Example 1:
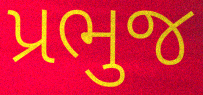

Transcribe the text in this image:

પ્રભુજ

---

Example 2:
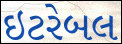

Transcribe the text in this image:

ઇટરેબલ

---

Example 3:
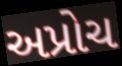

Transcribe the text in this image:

અપ્રોચ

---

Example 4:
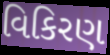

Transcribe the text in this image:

વિકિરણ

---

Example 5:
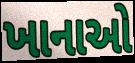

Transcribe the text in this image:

ખાનાઓ